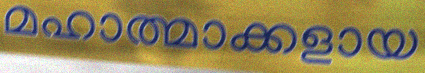
മഹാത്മാക്കളായ